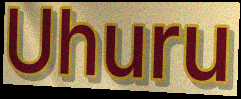
Uhuru